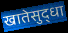
खातेसुद्धा